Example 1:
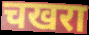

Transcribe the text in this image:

चखरा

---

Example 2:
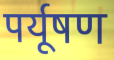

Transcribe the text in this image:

पर्यूषण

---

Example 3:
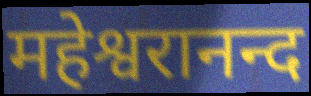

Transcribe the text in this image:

महेश्वरानन्द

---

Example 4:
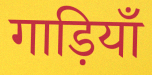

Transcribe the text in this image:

गाड़ियाँ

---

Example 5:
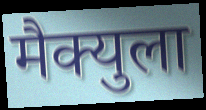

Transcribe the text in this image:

मैक्युला